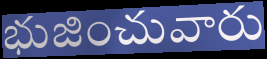
భుజించువారు